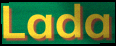
Lada